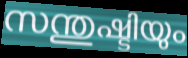
സന്തുഷ്ടിയും